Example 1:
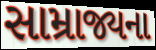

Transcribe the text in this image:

સામ્રાજ્યના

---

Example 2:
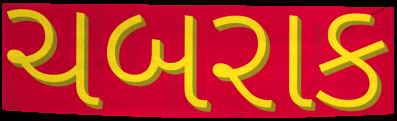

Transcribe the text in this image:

ચબરાક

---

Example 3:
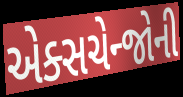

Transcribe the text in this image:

એક્સચેન્જોની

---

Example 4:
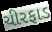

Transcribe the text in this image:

ચીરફાડ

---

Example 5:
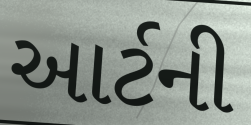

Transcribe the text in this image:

આર્ટની